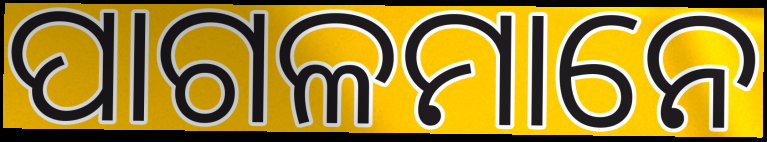
ପାଗଳମାନେ